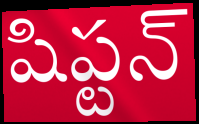
షిప్టన్